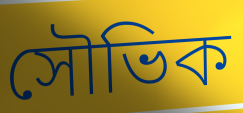
সৌভিক